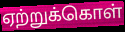
ஏற்றுக்கொள்